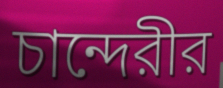
চান্দেরীর